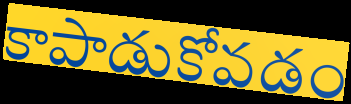
కాపాడుకోవడం